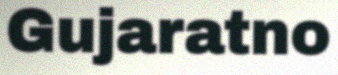
Gujaratno